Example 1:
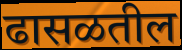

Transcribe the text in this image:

ढासळतील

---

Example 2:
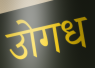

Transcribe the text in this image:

उोगध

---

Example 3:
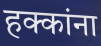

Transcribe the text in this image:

हक्कांना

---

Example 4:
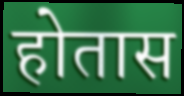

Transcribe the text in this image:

होतास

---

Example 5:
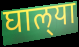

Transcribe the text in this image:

घाल्या